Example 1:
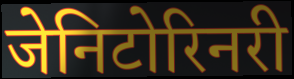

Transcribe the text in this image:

जेनिटोरिनरी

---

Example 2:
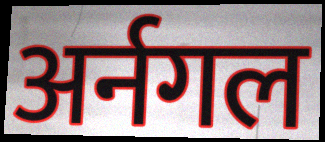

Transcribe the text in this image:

अर्नगल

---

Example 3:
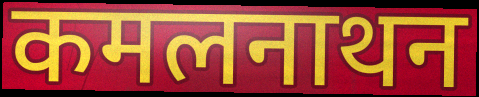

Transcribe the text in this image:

कमलनाथन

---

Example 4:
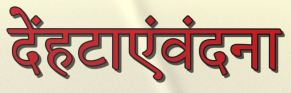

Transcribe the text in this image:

देंहटाएंवंदना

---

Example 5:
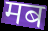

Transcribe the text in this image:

मब